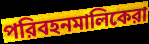
পরিবহনমালিকেরা